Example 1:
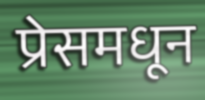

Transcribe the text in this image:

प्रेसमधून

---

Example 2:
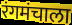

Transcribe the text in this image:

रंगमंचाला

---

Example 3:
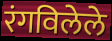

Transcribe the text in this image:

रंगविलेले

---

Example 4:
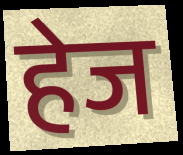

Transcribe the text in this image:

हेज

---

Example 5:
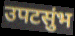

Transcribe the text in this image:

उपटसुंभ